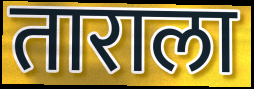
ताराला